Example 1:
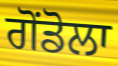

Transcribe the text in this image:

ਗੋਂਡੋਲਾ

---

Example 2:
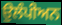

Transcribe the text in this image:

ਉੁਲੰਪੀਅਨ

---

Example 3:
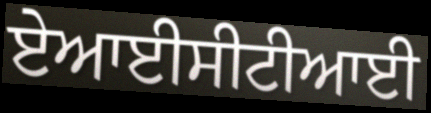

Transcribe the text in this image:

ਏਆਈਸੀਟੀਆਈ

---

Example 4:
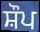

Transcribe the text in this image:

ਸ਼ੌਪ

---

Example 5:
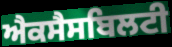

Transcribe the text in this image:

ਐਕਸੈਸਬਿਲਟੀ